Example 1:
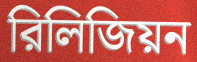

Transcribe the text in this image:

রিলিজিয়ন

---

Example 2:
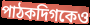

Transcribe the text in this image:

পাঠকদিগকেও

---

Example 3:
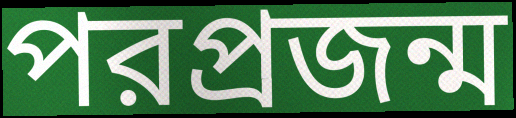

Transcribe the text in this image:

পরপ্রজন্ম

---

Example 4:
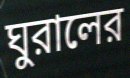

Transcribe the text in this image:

ঘুরালের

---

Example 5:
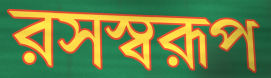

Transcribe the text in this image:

রসস্বরূপ